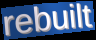
rebuilt